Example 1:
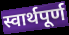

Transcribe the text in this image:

स्वार्थपूर्ण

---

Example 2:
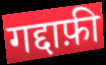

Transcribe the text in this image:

गद्दाफ़ी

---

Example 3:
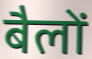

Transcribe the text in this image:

बैलों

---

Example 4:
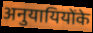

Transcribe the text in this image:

अनुयायियोंके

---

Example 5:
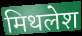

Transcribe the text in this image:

मिथलेश